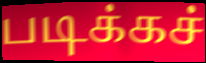
படிக்கச்